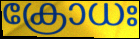
ക്രോധഃ